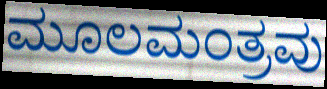
ಮೂಲಮಂತ್ರವು